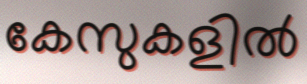
കേസുകളിൽ